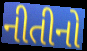
નીતીનો